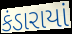
કંડારાયાં